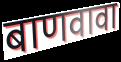
बाणवावा